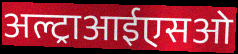
अल्ट्राआईएसओ